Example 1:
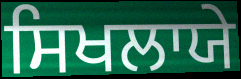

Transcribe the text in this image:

ਸਿਖਲਾਯੇ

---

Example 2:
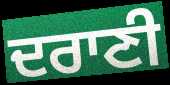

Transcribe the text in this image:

ਦਰਾਣੀ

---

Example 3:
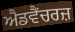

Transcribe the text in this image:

ਐਡਵੈਂਚਰਜ਼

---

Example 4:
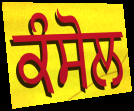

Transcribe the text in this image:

ਕੰਸੋਲ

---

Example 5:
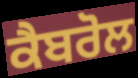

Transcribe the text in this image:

ਕੈਬਰੋਲ